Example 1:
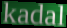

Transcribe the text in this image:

kadal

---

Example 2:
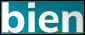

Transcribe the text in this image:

bien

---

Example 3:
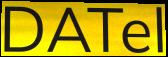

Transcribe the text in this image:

DATel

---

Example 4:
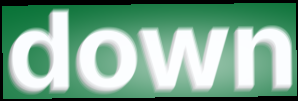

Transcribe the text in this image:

down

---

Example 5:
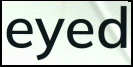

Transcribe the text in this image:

eyed